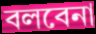
বলবেনা